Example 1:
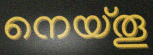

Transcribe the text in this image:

നെയ്തൂ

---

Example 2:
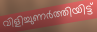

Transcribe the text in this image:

വിളിച്ചുണർത്തിയിട്ട്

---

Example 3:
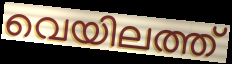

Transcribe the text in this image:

വെയിലത്ത്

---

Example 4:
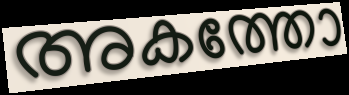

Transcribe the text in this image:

അകത്തോ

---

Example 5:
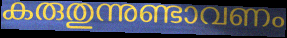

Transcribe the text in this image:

കരുതുന്നുണ്ടാവണം